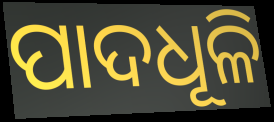
ପାଦଧୂଳି